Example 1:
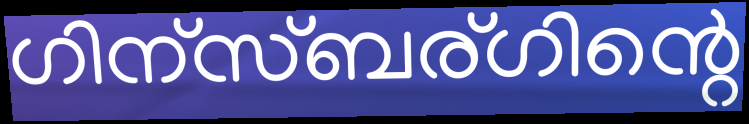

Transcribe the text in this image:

ഗിന്സ്ബര്ഗിന്റെ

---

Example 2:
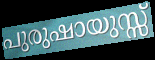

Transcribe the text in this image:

പുരുഷായുസ്സ്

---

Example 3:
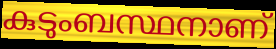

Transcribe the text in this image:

കുടുംബസ്ഥനാണ്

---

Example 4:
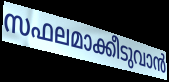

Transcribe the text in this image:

സഫലമാക്കീടുവാൻ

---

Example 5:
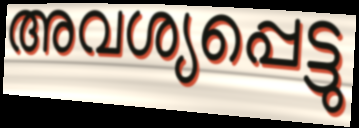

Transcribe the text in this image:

അവശ്യപ്പെട്ടു